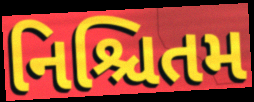
નિશ્ચિતમ